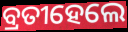
ବ୍ରତୀହେଲେ